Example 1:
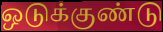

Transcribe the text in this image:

ஒடுக்குண்டு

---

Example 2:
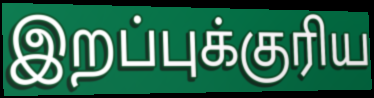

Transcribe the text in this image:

இறப்புக்குரிய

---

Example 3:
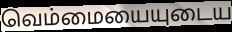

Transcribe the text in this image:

வெம்மையையுடைய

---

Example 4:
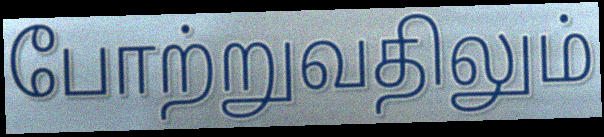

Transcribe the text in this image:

போற்றுவதிலும்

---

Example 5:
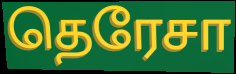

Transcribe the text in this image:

தெரேசா